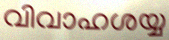
വിവാഹശയ്യ